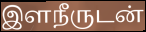
இளநீருடன்